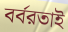
বর্বরতাই